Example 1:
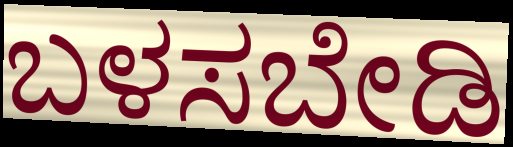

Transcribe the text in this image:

ಬಳಸಬೇಡಿ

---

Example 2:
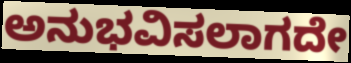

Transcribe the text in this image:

ಅನುಭವಿಸಲಾಗದೇ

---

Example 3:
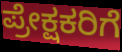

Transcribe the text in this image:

ಪ್ರೇಕ್ಷಕರಿಗೆ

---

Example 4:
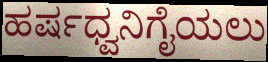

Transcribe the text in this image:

ಹರ್ಷಧ್ವನಿಗೈಯಲು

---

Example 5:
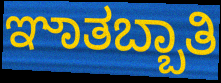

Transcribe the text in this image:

ಞಾತಬ್ಬಾತಿ